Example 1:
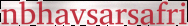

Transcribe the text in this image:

nbhavsarsafri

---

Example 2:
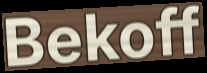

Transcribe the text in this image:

Bekoff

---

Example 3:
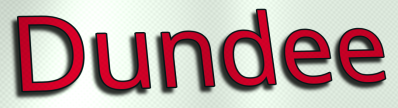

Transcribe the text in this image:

Dundee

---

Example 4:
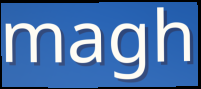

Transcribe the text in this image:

magh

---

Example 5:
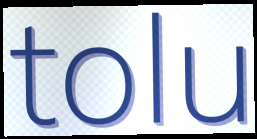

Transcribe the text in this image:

tolu